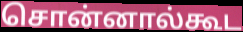
சொன்னால்கூட